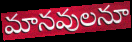
మానవులనూ